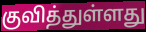
குவித்துள்ளது